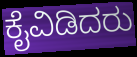
ಕೈವಿಡಿದರು